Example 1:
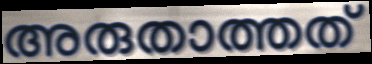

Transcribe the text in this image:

അരുതാത്തത്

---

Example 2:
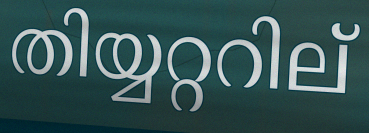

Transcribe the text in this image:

തിയ്യറ്ററില്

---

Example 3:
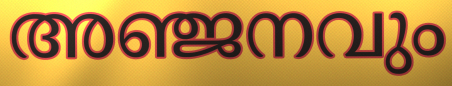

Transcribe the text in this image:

അഞ്ജനവും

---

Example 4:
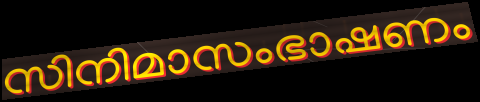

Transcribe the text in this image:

സിനിമാസംഭാഷണം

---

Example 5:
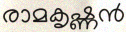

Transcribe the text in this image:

രാമകൃഷ്ണൻ